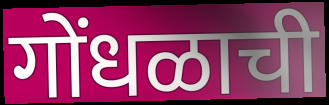
गोंधळाची